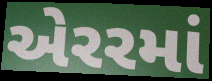
એરરમાં